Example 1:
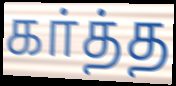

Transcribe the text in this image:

கர்த்த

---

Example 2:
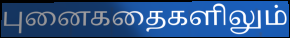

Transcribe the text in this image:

புனைகதைகளிலும்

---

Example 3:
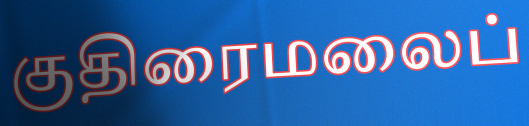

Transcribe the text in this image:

குதிரைமலைப்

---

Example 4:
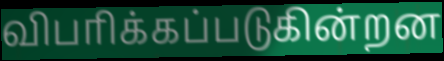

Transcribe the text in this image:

விபரிக்கப்படுகின்றன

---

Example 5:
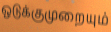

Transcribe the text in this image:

ஒடுக்குமுறையும்